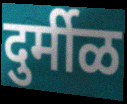
दुर्मीळ